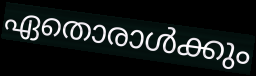
ഏതൊരാൾക്കും